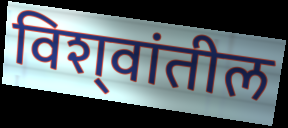
विश्वांतील